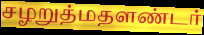
சழறுத்மதளண்டர்